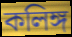
কলিঙ্গ